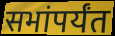
सभांपर्यंत